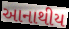
આનાથીય